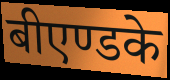
बीएण्डके